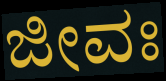
ಜೀವಃ